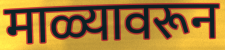
माळ्यावरून